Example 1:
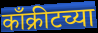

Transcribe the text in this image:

काँक्रीटच्या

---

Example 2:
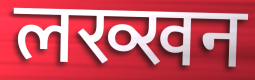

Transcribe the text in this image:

लख्खन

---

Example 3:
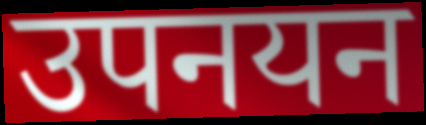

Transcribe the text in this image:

उपनयन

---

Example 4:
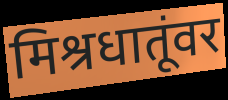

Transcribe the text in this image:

मिश्रधातूंवर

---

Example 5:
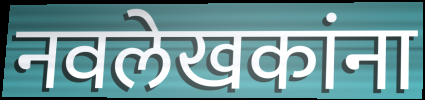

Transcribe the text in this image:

नवलेखकांना